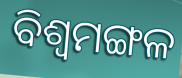
ବିଶ୍ୱମଙ୍ଗଳ